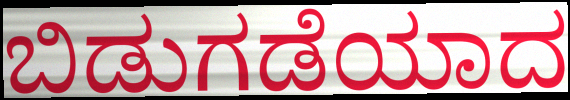
ಬಿಡುಗಡೆಯಾದ